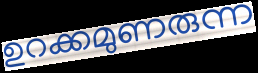
ഉറക്കമുണരുന്ന